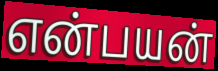
என்பயன்